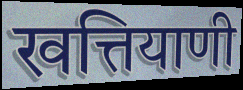
खत्तियाणी